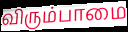
விரும்பாமை